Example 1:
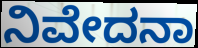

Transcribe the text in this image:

ನಿವೇದನಾ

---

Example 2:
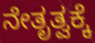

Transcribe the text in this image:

ನೇತೃತ್ವಕ್ಕೆ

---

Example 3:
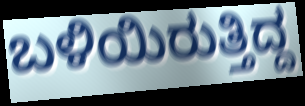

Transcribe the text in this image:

ಬಳಿಯಿರುತ್ತಿದ್ದ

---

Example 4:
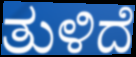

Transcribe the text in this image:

ತುಳಿದೆ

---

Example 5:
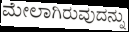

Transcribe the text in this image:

ಮೇಲಾಗಿರುವುದನ್ನು